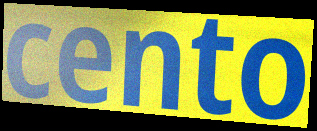
cento